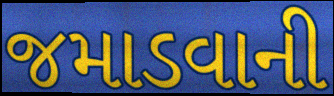
જમાડવાની